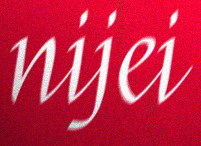
nijei